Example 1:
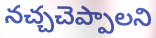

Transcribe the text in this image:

నచ్చచెప్పాలని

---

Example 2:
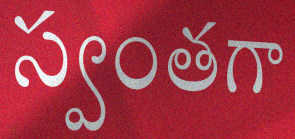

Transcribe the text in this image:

స్వంతగా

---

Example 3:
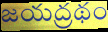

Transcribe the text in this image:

జయద్రథం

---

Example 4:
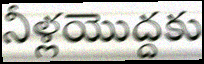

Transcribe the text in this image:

నీళ్లయొద్దకు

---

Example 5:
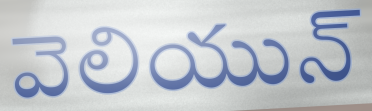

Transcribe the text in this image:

వెలియున్